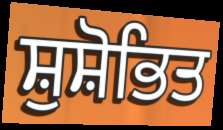
ਸ਼ੁਸ਼ੋਭਿਤ